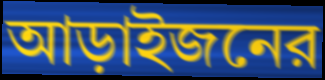
আড়াইজনের